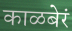
काळबेरं